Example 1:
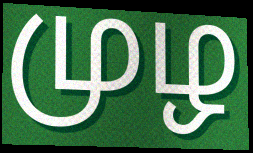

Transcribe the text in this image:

முழ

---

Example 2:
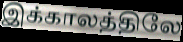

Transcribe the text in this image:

இக்காலத்திலே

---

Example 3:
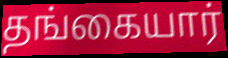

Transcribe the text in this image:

தங்கையார்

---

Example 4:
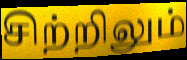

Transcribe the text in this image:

சிற்றிலும்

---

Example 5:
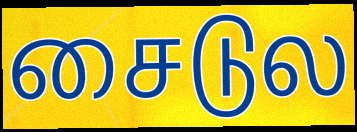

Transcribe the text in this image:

சைடுல